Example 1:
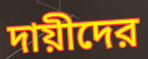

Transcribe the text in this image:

দায়ীদের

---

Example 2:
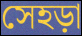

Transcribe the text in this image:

সেহড়া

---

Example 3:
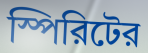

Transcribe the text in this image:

স্পিরিটের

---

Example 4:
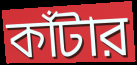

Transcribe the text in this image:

কাঁটার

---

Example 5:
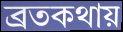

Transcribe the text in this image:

ব্রতকথায়